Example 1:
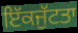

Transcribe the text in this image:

ਇੱਕਜੁੱਟਤਾ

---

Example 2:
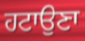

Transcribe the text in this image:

ਹਟਾਉਣਾ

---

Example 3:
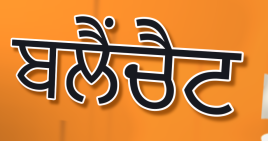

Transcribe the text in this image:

ਬਲੈਂਚੈਟ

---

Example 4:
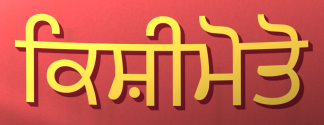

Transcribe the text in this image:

ਕਿਸ਼ੀਮੋਤੋ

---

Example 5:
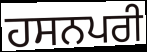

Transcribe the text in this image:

ਹਸਨਪਰੀ